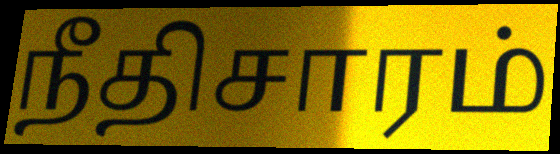
நீதிசாரம்